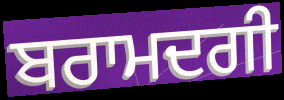
ਬਰਾਮਦਗੀ